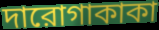
দারোগাকাকা